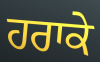
ਹਰਾਕੇ